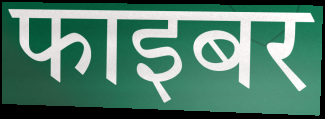
फाइबर